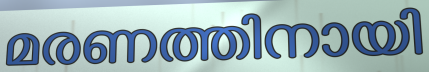
മരണത്തിനായി